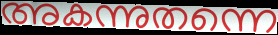
അകന്നുതന്നെ